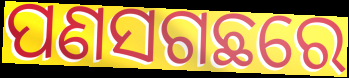
ପଣସଗଛରେ